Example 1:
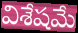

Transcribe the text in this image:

విశేషమే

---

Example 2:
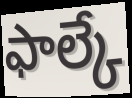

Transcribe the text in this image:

ఫాల్కే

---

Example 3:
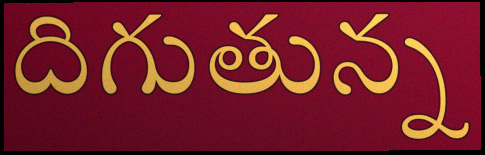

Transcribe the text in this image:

దిగుతున్న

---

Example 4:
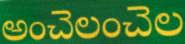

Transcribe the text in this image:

అంచెలంచెల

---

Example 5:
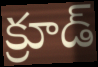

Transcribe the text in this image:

క్రూడ్